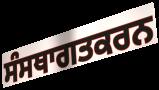
ਸੰਸਥਾਗਤਕਰਨ